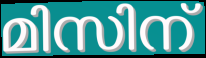
മിസിന്